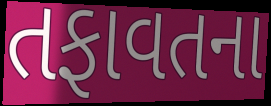
તફાવતના